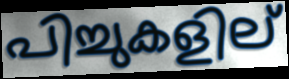
പിച്ചുകളില്